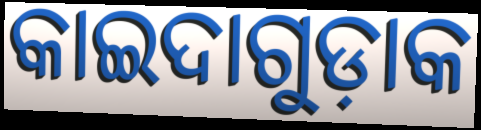
କାଇଦାଗୁଡ଼ାକ